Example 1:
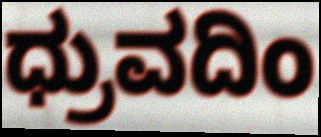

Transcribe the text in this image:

ಧ್ರುವದಿಂ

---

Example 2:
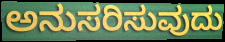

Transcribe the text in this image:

ಅನುಸರಿಸುವುದು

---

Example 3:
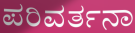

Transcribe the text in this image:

ಪರಿವರ್ತನಾ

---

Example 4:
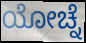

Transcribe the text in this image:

ಯೋಚ್ನೆ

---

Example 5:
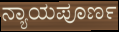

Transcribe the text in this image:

ನ್ಯಾಯಪೂರ್ಣ